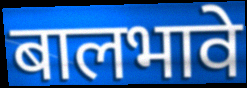
बालभावे